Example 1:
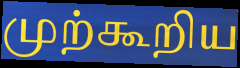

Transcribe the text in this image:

முற்கூறிய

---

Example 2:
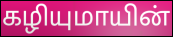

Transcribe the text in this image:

கழியுமாயின்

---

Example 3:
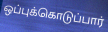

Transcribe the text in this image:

ஒப்புக்கொடுப்பார்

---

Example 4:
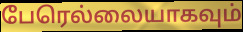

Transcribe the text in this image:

பேரெல்லையாகவும்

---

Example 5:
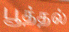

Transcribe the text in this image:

பூத்தல்